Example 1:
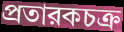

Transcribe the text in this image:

প্রতারকচক্র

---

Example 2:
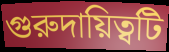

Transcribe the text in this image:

গুরুদায়িত্বটি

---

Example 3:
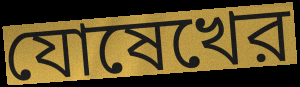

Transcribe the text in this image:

যোষেখের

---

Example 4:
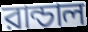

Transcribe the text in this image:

রান্ডাল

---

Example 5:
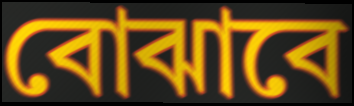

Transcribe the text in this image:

বোঝাবে